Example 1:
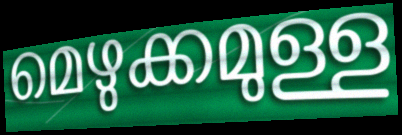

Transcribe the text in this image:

മെഴുക്കമുള്ള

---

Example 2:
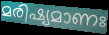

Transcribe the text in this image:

മരിഷ്യമാണഃ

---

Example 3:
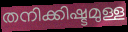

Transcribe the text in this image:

തനിക്കിഷ്ടമുള്ള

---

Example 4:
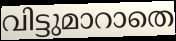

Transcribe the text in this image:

വിട്ടുമാറാതെ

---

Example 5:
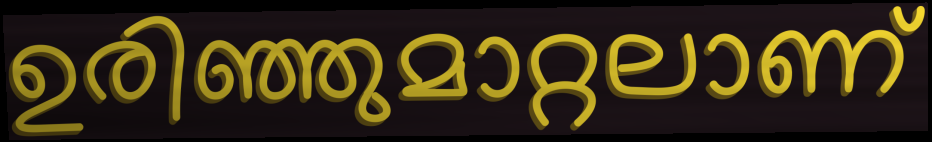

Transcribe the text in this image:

ഉരിഞ്ഞുമാറ്റലാണ്